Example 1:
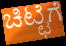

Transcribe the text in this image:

ಚಿಟ್ಟೆಗೆ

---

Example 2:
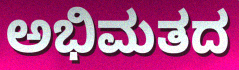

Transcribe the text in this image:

ಅಭಿಮತದ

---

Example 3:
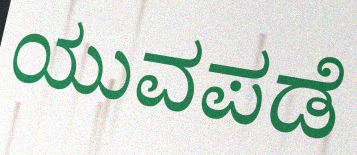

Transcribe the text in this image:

ಯುವಪಡೆ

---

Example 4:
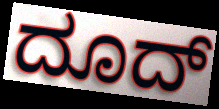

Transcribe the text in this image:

ದೂದ್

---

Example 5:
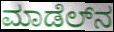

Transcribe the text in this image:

ಮಾಡೆಲ್‌ನ